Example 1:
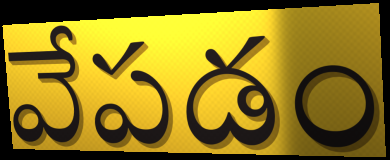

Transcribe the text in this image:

వేపడం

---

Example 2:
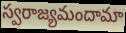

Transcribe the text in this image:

స్వరాజ్యమందామా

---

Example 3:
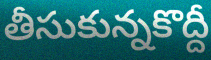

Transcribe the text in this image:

తీసుకున్నకొద్దీ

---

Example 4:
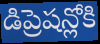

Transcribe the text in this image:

డిప్రెషన్లోకి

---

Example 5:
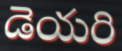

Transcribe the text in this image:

డెయరి